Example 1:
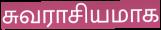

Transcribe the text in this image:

சுவராசியமாக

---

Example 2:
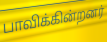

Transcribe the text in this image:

பாவிக்கின்றனர்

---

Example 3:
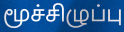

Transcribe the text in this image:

மூச்சிழுப்பு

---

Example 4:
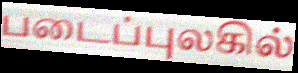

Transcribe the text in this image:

படைப்புலகில்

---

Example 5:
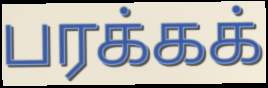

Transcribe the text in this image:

பரக்கக்